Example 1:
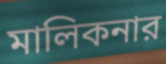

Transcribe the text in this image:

মালিকনার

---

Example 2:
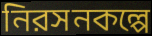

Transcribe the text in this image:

নিরসনকল্পে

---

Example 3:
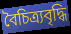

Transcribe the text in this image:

বৈচিত্র্যবৃদ্ধি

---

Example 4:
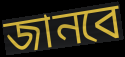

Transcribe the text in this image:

জানবে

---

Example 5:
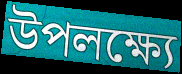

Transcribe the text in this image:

উপলক্ষ্যে